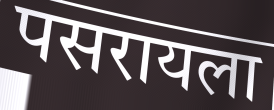
पसरायला